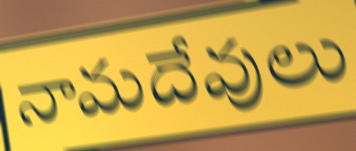
నామదేవులు